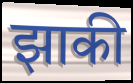
झाकी